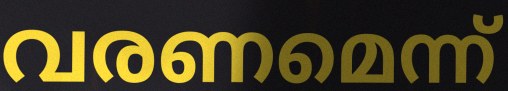
വരണമെന്ന്